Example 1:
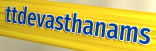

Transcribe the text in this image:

ttdevasthanams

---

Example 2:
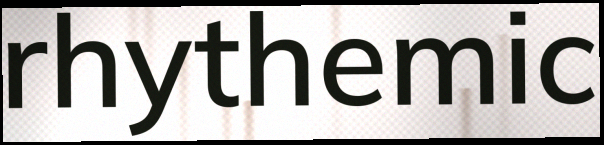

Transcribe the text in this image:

rhythemic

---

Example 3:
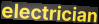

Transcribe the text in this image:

electrician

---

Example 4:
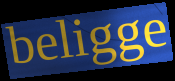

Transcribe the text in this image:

beligge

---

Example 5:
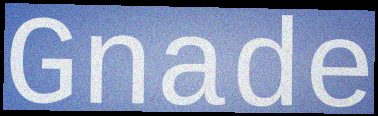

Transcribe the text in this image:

Gnade